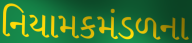
નિયામકમંડળના